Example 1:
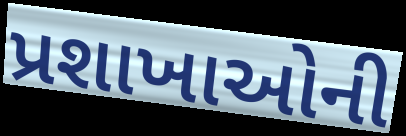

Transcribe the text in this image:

પ્રશાખાઓની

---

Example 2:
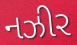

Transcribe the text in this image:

નઝીર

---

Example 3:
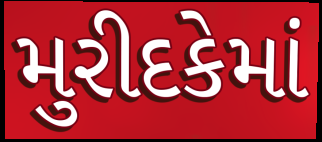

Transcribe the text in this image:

મુરીદકેમાં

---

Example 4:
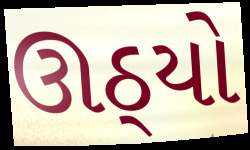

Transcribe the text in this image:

ઊઠ્યો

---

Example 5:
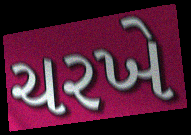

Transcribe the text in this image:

ચરખે